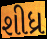
શીધ્ર